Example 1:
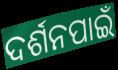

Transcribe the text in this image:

ଦର୍ଶନପାଇଁ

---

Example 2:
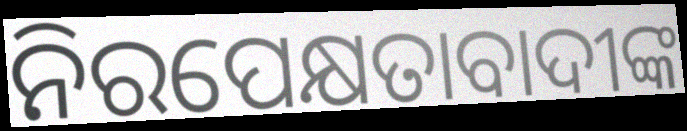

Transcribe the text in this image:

ନିରପେକ୍ଷତାବାଦୀଙ୍କ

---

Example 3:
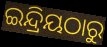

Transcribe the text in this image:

ଇନ୍ଦ୍ରିୟଠାରୁ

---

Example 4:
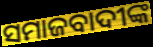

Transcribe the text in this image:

ସମାଜବାଦୀଙ୍କ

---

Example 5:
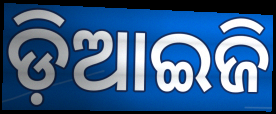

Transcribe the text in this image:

ଡ଼ିଆଇଜି